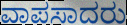
ವಾಪಸಾದರು